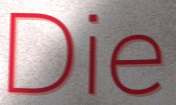
Die